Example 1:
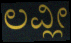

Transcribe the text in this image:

ಲವ್ಲೀ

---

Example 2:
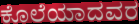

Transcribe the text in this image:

ಕೊಲೆಯಾದವರ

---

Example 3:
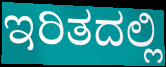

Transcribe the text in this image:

ಇರಿತದಲ್ಲಿ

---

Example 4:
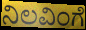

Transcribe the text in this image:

ನಿಲವಿಂಗೆ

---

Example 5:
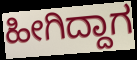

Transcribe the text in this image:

ಹೀಗಿದ್ದಾಗ